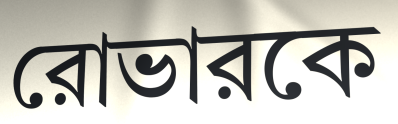
রোভারকে